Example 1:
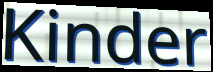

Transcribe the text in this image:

Kinder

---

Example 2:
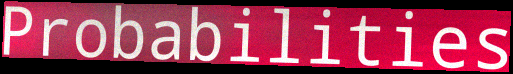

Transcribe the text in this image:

Probabilities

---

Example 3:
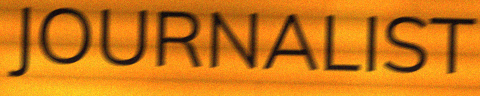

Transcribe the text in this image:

JOURNALIST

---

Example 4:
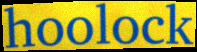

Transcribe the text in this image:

hoolock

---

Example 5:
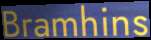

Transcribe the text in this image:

Bramhins